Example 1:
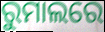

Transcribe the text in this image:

ରୁମାଲରେ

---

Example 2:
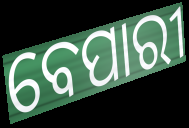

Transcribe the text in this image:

ବେପାରୀ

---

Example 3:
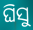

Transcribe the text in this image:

ଘିସୁ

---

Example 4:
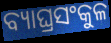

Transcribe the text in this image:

ବ୍ୟାଘ୍ରସଂକୁଳ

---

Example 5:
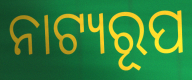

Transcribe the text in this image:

ନାଟ୍ୟରୂପ